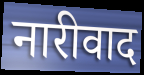
नारीवाद